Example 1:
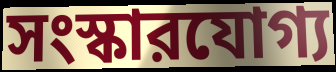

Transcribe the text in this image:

সংস্কারযোগ্য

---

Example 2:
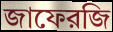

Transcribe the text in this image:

জাফেরজি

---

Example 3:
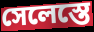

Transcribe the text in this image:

সেলেস্তে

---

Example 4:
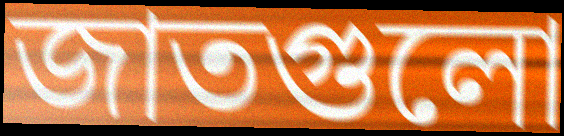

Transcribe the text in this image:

জাতগুলো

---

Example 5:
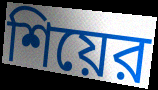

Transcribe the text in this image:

শিয়ের